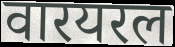
वारयरल